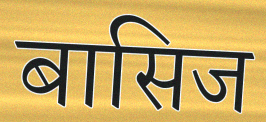
बासिज